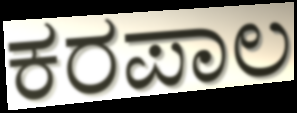
ಕರಪಾಲ